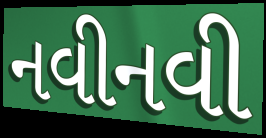
નવીનવી